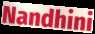
Nandhini